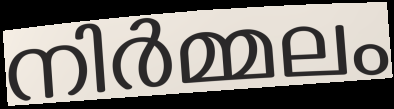
നിർമ്മലം